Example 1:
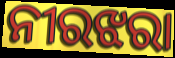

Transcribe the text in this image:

ନୀରଝରା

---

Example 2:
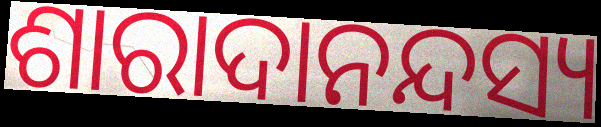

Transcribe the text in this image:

ଶାରାଦାନନ୍ଦସ୍ୟ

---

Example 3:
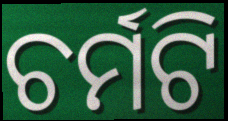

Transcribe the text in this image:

ଚର୍ମଟି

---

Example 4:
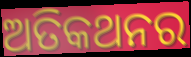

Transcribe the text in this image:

ଅତିକଥନର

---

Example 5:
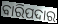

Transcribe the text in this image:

ବାରିପଦାର